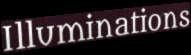
Illuminations